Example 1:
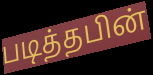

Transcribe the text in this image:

படித்தபின்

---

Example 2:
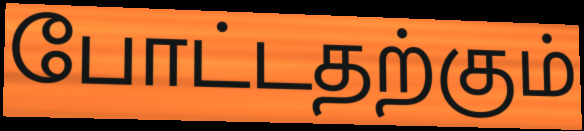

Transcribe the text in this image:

போட்டதற்கும்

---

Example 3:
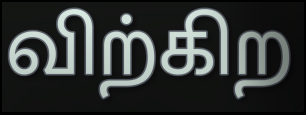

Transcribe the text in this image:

விற்கிற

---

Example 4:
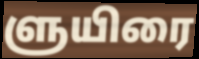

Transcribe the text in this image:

ளுயிரை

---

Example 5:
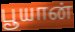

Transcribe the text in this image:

பூயான்